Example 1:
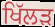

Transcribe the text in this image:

ਖਿੱਲੜ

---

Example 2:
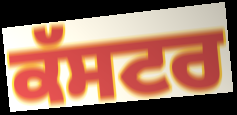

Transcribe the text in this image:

ਕੱਸਟਰ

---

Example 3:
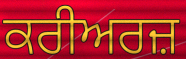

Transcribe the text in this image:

ਕਰੀਅਰਜ਼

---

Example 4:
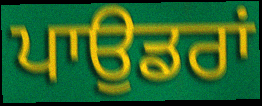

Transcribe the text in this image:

ਪਾਉਡਰਾਂ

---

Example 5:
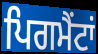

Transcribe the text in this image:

ਪਿਗਮੈਂਟਾਂ